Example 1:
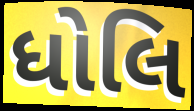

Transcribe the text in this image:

ધોલિ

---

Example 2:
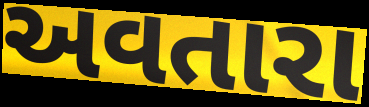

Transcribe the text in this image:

અવતારા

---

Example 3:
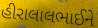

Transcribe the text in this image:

હીરાલાલભાઈને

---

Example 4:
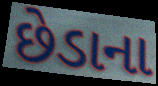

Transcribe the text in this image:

છેડાના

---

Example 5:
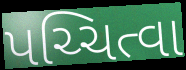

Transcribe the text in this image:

પચ્ચિત્વા